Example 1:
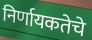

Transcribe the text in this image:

निर्णायकतेचे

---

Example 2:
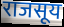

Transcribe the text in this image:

राजसूय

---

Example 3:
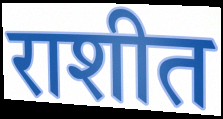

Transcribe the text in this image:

राशीत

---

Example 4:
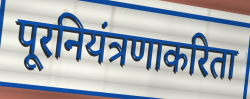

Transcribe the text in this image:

पूरनियंत्रणाकरिता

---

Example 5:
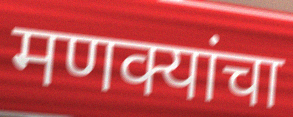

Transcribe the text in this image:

मणक्यांचा